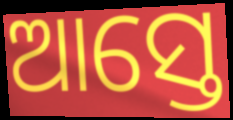
ଆସ୍ତେ